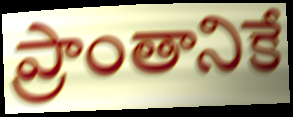
ప్రాంతానికే